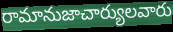
రామానుజాచార్యులవారు